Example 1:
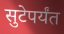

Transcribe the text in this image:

सुटेपर्यंत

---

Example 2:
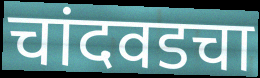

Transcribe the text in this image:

चांदवडचा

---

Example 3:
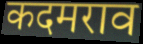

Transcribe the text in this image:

कदमराव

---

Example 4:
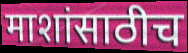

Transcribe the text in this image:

माशांसाठीच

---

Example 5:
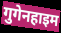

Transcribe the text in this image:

गुगेनहाइम